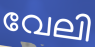
വേലി